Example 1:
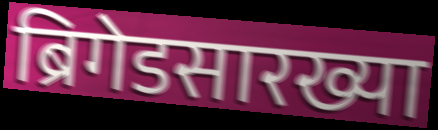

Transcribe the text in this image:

ब्रिगेडसारख्या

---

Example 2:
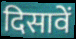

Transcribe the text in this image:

दिसावें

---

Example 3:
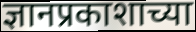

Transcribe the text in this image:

ज्ञानप्रकाशाच्या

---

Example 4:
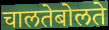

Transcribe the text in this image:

चालतेबोलते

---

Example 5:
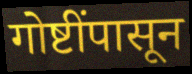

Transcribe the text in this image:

गोष्टींपासून